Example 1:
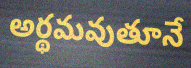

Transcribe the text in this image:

అర్థమవుతూనే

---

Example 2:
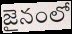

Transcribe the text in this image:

జైనంలో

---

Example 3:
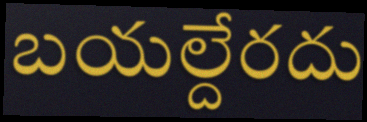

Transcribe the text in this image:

బయల్దేరదు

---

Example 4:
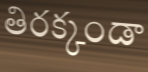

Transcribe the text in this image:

తిరక్కండా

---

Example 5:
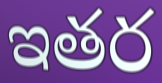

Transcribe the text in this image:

ఇతర